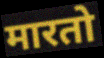
मारतो